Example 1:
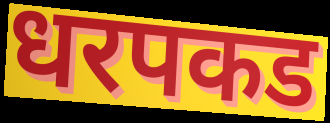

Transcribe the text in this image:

धरपकड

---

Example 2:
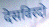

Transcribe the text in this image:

देसविरदो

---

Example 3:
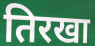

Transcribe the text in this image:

तिरखा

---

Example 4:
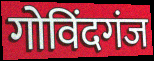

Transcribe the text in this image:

गोविंदगंज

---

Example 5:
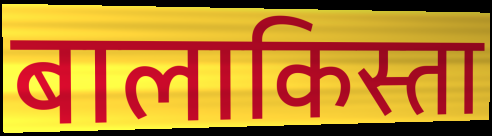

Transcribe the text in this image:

बालाकिस्ता